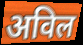
अविल